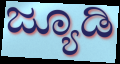
ಜ್ಯೂಡಿ